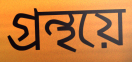
গ্ৰন্থয়ে